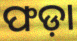
ଫଡ଼ା